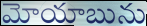
మోయాబును